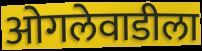
ओगलेवाडीला